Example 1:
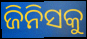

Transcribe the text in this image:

ଜିନିସକୁ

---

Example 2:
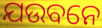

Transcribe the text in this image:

ଯଉବନେ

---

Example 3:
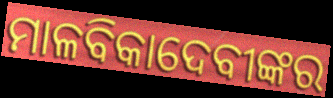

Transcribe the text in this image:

ମାଳବିକାଦେବୀଙ୍କର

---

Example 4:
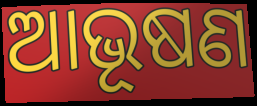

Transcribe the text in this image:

ଆଭୂଷଣ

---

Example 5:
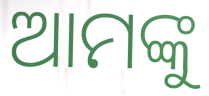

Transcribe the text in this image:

ଆମଙ୍କୁ